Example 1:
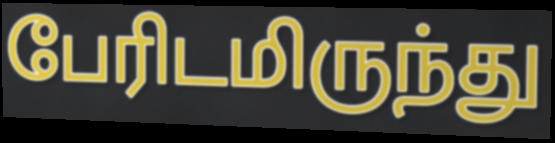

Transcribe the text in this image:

பேரிடமிருந்து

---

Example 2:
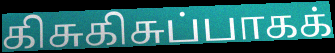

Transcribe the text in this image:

கிசுகிசுப்பாகக்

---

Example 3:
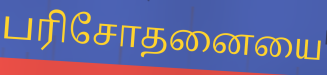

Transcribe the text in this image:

பரிசோதனையை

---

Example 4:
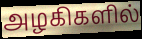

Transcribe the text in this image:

அழகிகளில்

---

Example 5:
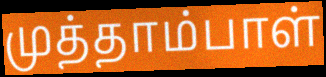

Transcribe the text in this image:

முத்தாம்பாள்